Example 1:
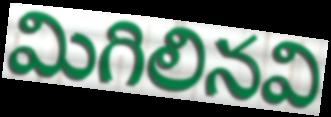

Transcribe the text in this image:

మిగిలినవి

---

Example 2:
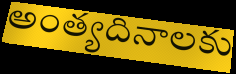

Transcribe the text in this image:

అంత్యదినాలకు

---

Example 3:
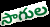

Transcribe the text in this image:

సాగుల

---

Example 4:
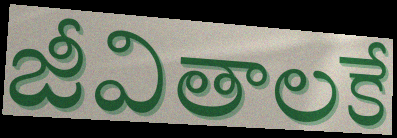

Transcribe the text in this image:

జీవితాలకే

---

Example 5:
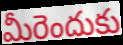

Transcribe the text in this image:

మీరెందుకు